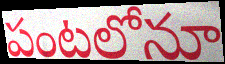
పంటలోనూ